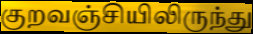
குறவஞ்சியிலிருந்து